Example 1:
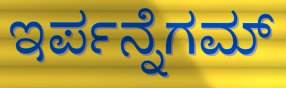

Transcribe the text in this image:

ಇರ್ಪನ್ನೆಗಮ್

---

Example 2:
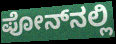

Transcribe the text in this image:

ಪೋನ್‍ನಲ್ಲಿ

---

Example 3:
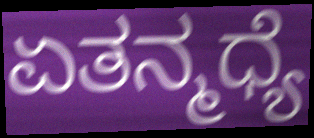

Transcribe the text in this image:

ಏತನ್ಮಧ್ಯೆ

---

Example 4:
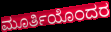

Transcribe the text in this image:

ಮೂರ್ತಿಯೊಂದರ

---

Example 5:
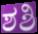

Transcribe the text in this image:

ಶಶಿ